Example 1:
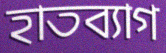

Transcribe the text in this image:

হাতব্যাগ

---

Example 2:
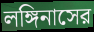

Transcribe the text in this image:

লঙ্গিনাসের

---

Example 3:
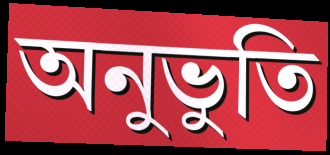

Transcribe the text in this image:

অনুভুতি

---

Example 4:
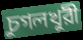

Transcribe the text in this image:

চুগলখুরী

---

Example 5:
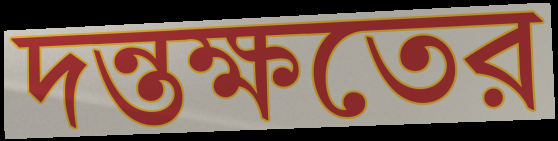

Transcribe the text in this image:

দন্তক্ষতের